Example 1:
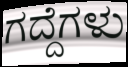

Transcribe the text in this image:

ಗದ್ದೆಗಳು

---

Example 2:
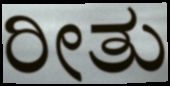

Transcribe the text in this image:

ರೀತು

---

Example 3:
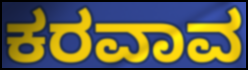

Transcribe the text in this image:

ಕರವಾವ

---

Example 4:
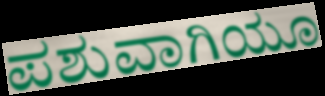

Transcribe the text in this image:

ಪಶುವಾಗಿಯೂ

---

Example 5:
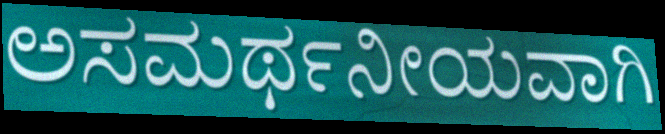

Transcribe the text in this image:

ಅಸಮರ್ಥನೀಯವಾಗಿ